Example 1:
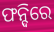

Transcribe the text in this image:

ଫନ୍ଦିରେ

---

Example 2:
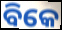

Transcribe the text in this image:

ବିକେ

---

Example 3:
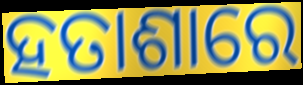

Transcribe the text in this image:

ହତାଶାରେ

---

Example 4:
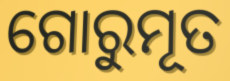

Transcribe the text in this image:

ଗୋରୁମୂତ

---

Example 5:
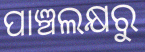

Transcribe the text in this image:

ପାଞ୍ଚଲକ୍ଷରୁ